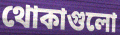
থোকাগুলো